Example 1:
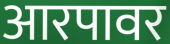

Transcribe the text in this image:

आरपावर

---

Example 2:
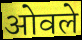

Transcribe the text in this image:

ओवले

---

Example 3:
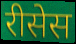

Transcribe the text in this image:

रीसेस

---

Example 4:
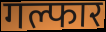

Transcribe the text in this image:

गल्फार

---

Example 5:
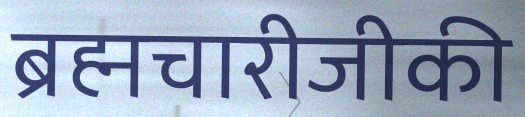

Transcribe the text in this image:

ब्रह्मचारीजीकी